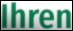
Ihren